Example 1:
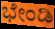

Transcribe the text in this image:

ಭೇಂಡಿ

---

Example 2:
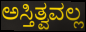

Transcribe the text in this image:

ಅಸ್ತಿತ್ವವಲ್ಲ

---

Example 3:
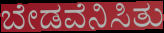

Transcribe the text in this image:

ಬೇಡವೆನಿಸಿತು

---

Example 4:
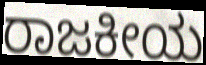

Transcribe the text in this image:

ರಾಜಕೀಯ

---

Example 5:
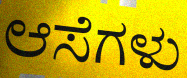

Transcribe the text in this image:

ಆಸೆಗಳು